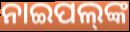
ନାଇପଲ୍‍ଙ୍କ